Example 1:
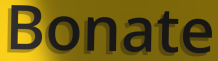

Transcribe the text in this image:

Bonate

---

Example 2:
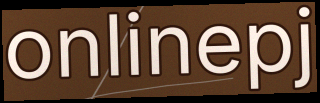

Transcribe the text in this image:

onlinepj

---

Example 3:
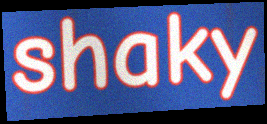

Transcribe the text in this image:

shaky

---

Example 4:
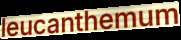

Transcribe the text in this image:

leucanthemum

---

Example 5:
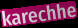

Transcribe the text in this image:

karechhe